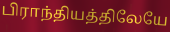
பிராந்தியத்திலேயே